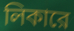
লিকারে